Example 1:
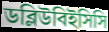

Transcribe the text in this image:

ডব্লিউবিইসিসি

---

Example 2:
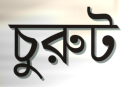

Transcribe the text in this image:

চুরুট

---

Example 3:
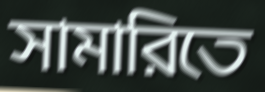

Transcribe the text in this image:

সামারিতে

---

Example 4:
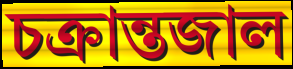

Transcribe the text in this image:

চক্রান্তজাল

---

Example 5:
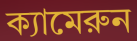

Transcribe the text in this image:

ক্যামেরুন